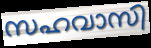
സഹവാസി